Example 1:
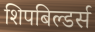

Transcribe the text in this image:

शिपबिल्डर्स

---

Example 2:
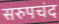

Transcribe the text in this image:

सरुपचंद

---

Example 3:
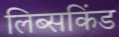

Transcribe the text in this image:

लिब्सकिंड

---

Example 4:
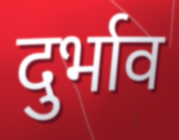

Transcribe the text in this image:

दुर्भाव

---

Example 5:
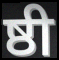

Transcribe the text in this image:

ष्ठी